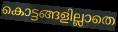
കൊട്ടങ്ങളില്ലാതെ